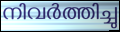
നിവർത്തിച്ചു